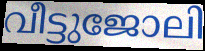
വീട്ടുജോലി